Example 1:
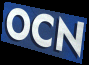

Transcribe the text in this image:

OCN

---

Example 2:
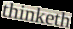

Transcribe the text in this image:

thinketh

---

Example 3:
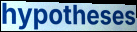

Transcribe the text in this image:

hypotheses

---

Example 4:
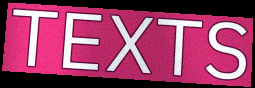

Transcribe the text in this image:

TEXTS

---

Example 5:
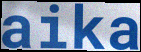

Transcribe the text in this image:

aika